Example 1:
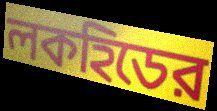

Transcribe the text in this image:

লকহিডের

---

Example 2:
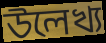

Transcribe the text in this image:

উলেখ্য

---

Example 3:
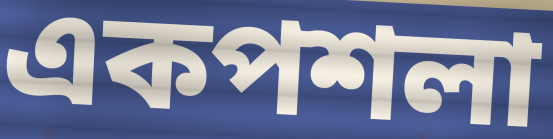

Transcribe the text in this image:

একপশলা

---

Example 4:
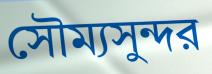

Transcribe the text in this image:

সৌম্যসুন্দর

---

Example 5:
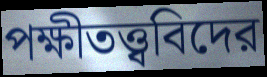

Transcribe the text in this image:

পক্ষীতত্ত্ববিদের